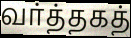
வர்த்தகத்